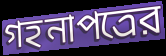
গহনাপত্রের